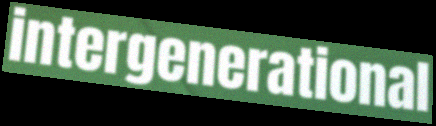
intergenerational